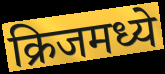
क्रिजमध्ये